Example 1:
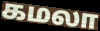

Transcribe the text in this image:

கமலா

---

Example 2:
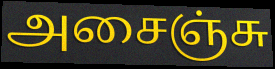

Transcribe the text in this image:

அசைஞ்சு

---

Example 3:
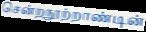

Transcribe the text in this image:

சென்றநூற்றாண்டின்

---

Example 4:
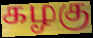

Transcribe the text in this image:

கழகு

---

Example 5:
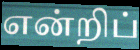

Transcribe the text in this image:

என்றிப்